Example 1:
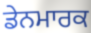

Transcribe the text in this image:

ਡੇਨਮਾਰਕ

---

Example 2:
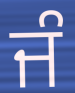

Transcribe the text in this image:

ਜੰ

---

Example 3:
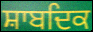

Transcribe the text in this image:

ਸ਼ਾਬਦਿਕ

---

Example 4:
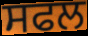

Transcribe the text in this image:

ਸਫਲ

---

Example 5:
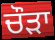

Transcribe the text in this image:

ਚੌੜਾ